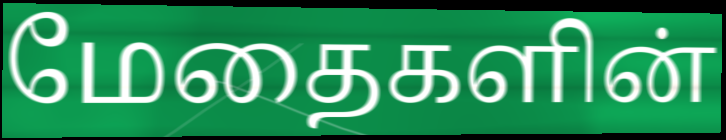
மேதைகளின்